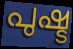
പുഷ്ട